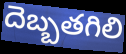
దెబ్బతగిలి